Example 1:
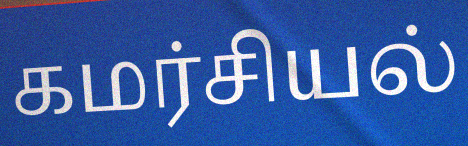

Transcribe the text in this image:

கமர்சியல்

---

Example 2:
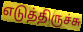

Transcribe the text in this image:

எடுத்திருச்சு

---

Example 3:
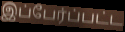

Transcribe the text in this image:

இப்பேர்ப்பட்ட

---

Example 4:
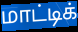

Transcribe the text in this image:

மாட்டிக்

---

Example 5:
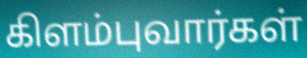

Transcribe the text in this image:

கிளம்புவார்கள்